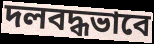
দলবদ্ধভাবে